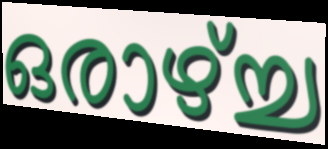
ഒരാഴ്ച്ച